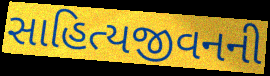
સાહિત્યજીવનની